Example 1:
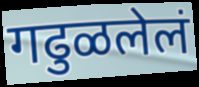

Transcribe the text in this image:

गढुळलेलं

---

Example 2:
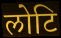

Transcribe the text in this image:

लोटि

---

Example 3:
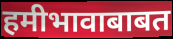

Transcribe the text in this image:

हमीभावाबाबत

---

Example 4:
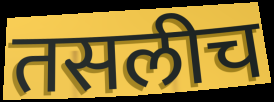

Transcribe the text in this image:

तसलीच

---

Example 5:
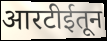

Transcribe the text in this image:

आरटीईतून